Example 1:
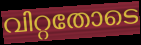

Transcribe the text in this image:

വിറ്റതോടെ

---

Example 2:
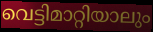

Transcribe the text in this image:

വെട്ടിമാറ്റിയാലും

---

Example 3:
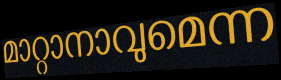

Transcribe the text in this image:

മാറ്റാനാവുമെന്ന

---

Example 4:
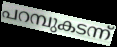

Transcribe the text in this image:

പറമ്പുകടന്ന്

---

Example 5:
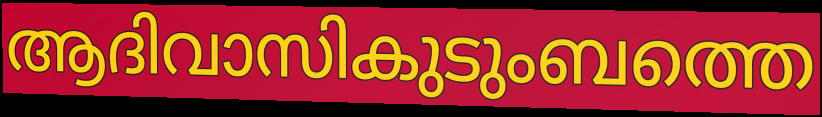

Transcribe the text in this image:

ആദിവാസികുടുംബത്തെ